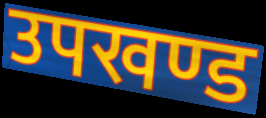
उपखण्ड